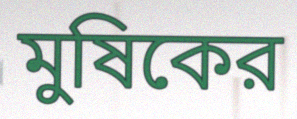
মুষিকের